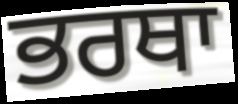
ਭਰਥਾ